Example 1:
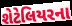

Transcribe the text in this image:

શેટેલિયરના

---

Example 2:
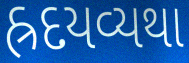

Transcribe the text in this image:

હ્રદયવ્યથા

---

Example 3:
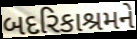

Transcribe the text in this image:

બદરિકાશ્રમને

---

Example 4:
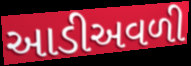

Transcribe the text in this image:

આડીઅવળી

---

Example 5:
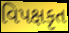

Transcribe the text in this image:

વિપક્ષકૃત